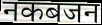
नकबजन